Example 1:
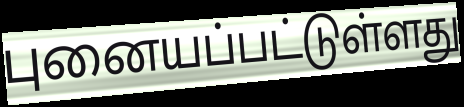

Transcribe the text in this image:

புனையப்பட்டுள்ளது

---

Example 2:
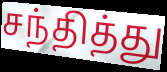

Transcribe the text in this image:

சந்தித்து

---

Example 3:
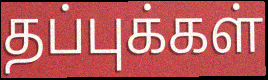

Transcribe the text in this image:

தப்புக்கள்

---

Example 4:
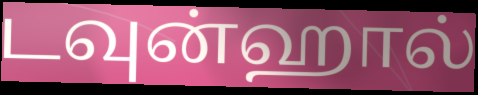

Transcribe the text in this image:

டவுன்ஹால்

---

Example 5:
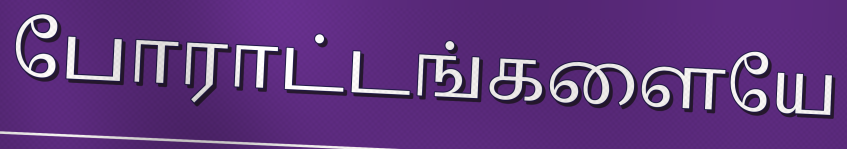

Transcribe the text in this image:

போராட்டங்களையே